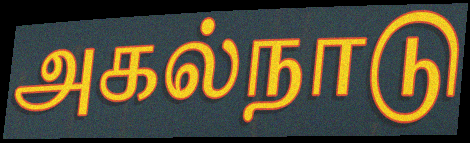
அகல்நாடு